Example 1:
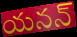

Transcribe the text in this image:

యనన్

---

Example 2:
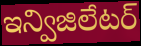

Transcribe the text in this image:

ఇన్విజిలేటర్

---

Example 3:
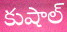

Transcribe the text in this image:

కుషాల్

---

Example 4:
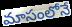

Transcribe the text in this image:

మాసంలోనే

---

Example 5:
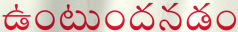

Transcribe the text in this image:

ఉంటుందనడం